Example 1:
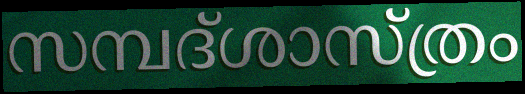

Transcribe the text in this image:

സമ്പദ്ശാസ്ത്രം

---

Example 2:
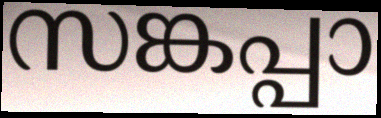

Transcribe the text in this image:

സങ്കപ്പാ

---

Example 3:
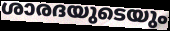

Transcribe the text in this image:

ശാരദയുടെയും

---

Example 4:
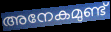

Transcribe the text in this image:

അനേകമുണ്ട്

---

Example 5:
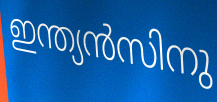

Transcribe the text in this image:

ഇന്ത്യൻസിനു